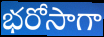
భరోసాగా